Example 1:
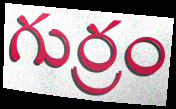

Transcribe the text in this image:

గుర్రం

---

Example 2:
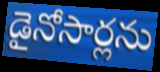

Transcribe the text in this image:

డైనోసార్లను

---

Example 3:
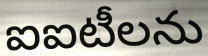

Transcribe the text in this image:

ఐఐటీలను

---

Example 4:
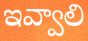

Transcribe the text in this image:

ఇవ్వాలి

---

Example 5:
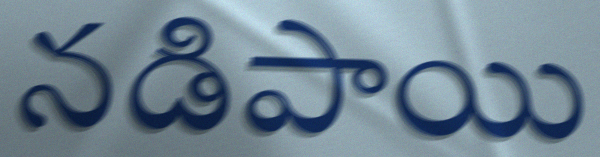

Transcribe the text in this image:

నడిపాయి